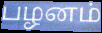
பழனம்